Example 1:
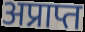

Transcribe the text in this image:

अप्राप्त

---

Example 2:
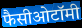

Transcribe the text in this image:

फैसीओटॉमी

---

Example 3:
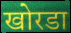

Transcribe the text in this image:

खोरडा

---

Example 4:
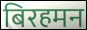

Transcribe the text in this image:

बिरहमन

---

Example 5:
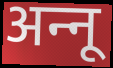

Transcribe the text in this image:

अन्नू